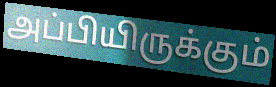
அப்பியிருக்கும்